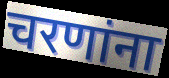
चरणांना